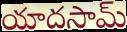
యాదసామ్